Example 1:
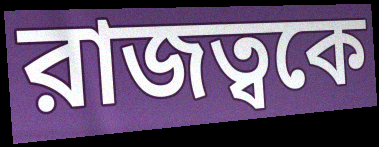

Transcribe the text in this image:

রাজত্বকে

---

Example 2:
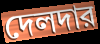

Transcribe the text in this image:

দেলদার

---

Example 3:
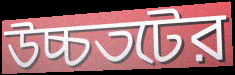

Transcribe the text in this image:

উচ্চতটের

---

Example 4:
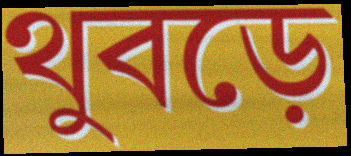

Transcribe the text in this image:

থুবড়ে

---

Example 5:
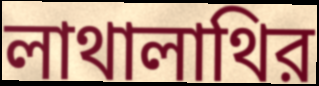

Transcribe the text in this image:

লাথালাথির